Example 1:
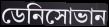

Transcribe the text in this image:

ডেনিসোভান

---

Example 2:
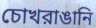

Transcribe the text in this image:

চোখরাঙানি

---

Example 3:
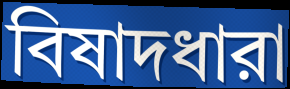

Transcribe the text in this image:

বিষাদধারা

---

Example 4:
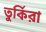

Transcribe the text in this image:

তুর্কিরা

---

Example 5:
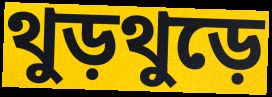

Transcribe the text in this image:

থুড়থুড়ে